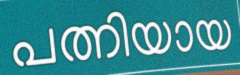
പത്നിയായ